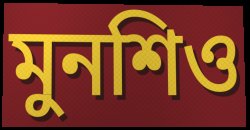
মুনশিও